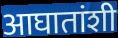
आघातांशी